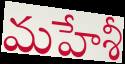
మహేశీ